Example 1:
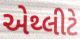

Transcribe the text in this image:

એથ્લીટે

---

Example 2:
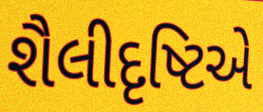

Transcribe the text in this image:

શૈલીદૃષ્ટિએ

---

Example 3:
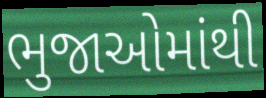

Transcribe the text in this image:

ભુજાઓમાંથી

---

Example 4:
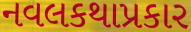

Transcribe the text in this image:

નવલકથાપ્રકાર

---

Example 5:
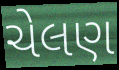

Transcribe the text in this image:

ચેલણ